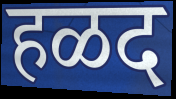
हळद